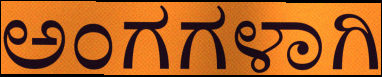
ಅಂಗಗಳಾಗಿ